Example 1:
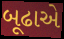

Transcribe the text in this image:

બૂઢાએ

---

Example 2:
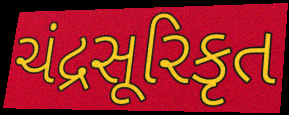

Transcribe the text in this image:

ચંદ્રસૂરિકૃત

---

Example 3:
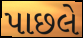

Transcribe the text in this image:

પાછલે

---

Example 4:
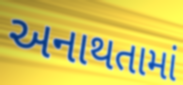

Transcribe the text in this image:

અનાથતામાં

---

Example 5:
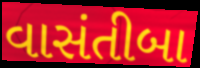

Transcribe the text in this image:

વાસંતીબા